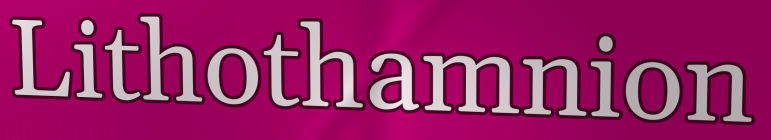
Lithothamnion